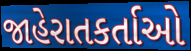
જાહેરાતકર્તાઓ